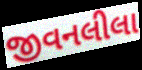
જીવનલીલા